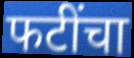
फटींचा